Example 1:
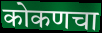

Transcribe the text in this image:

कोकणचा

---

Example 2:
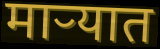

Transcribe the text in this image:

माऱ्यात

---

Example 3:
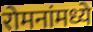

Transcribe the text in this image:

रोमनांमध्ये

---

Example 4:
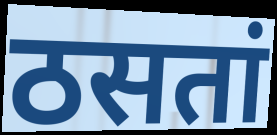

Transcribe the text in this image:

ठसतां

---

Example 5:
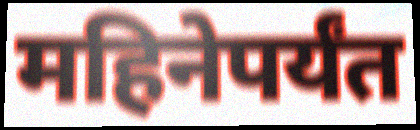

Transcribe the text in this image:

महिनेपर्यंत